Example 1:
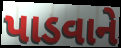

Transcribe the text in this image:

પાડવાને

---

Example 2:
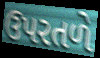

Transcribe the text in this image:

ઉપરતળે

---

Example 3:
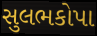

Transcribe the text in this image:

સુલભકોપા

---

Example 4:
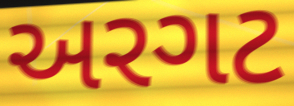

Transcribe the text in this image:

અરગટ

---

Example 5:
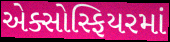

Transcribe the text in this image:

એક્સોસ્ફિયરમાં